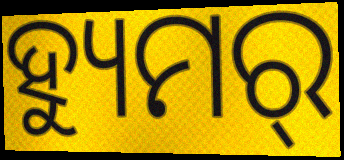
ହ୍ୟୁମର୍